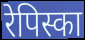
रेपिस्का